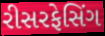
રીસરફેસિંગ